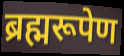
ब्रह्मरूपेण